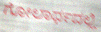
ಗೋಲಾರ್ಧದಲ್ಲಿ